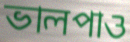
ভালপাও